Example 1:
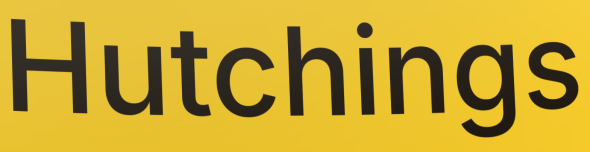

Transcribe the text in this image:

Hutchings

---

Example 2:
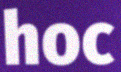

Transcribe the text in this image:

hoc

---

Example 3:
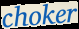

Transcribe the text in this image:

choker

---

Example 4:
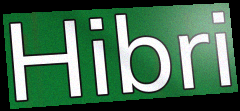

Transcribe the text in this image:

Hibri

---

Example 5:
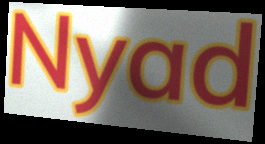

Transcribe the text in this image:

Nyad